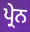
ਪ੍ਰੇਨ